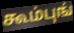
கூம்புங்